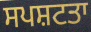
ਸਪਸ਼ਟਤਾ